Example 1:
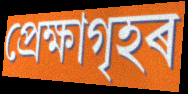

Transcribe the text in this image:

প্ৰেক্ষাগৃহৰ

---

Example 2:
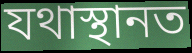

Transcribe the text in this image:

যথাস্থানত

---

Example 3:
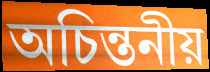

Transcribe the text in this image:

অচিন্তনীয়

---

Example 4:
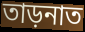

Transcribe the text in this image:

তাড়নাত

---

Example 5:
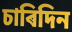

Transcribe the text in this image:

চাৰিদিন